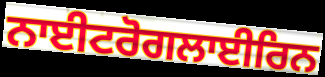
ਨਾਈਟਰੋਗਲਾਈਰਿਨ